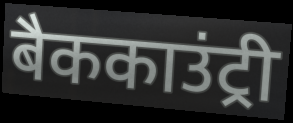
बैककाउंट्री